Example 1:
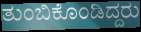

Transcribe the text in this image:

ತುಂಬಿಕೊಂಡಿದ್ದರು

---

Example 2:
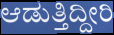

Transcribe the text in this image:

ಆಡುತ್ತಿದ್ದೀರಿ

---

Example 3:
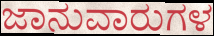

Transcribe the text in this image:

ಜಾನುವಾರುಗಳ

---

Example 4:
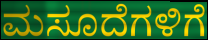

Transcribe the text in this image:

ಮಸೂದೆಗಳಿಗೆ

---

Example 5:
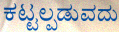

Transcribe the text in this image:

ಕಟ್ಟಲ್ಪಡುವದು